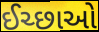
ઈચ્છાઓ